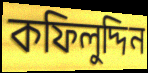
কফিলুদ্দিন